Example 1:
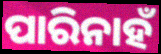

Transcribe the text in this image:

ପାରିନାହଁ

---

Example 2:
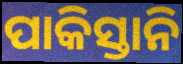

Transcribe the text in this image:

ପାକିସ୍ତାନି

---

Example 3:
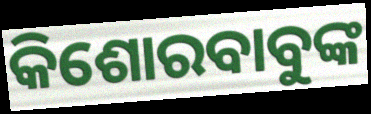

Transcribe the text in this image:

କିଶୋରବାବୁଙ୍କ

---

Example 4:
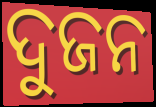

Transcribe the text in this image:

ଦୁଜନ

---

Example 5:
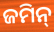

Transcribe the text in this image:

ଜମିନ୍